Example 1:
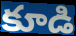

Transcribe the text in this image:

కూడి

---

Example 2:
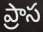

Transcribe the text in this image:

ప్రాస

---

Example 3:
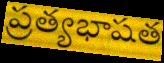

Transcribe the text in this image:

ప్రత్యభాషత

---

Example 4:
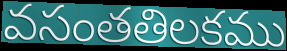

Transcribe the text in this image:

వసంతతిలకము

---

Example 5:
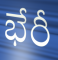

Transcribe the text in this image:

భేరీ